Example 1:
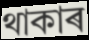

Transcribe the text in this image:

থাকাৰ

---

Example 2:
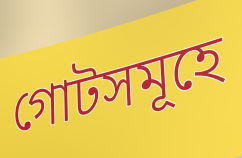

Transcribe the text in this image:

গোটসমূহে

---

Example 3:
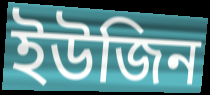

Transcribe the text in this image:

ইউজিন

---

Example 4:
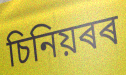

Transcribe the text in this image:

চিনিয়ৰৰ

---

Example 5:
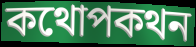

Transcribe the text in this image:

কথোপকথন